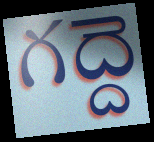
గద్దె